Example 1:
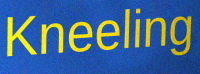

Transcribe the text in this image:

Kneeling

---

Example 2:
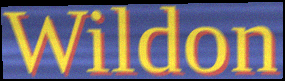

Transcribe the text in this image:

Wildon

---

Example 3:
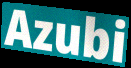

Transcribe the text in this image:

Azubi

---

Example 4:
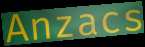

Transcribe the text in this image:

Anzacs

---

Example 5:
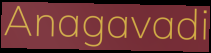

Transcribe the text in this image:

Anagavadi